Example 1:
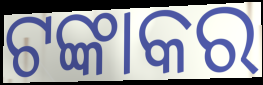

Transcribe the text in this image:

ଟଙ୍କାକର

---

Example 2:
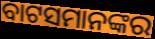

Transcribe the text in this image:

ବାଟସମାନଙ୍କର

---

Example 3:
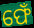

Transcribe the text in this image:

ଫେଁ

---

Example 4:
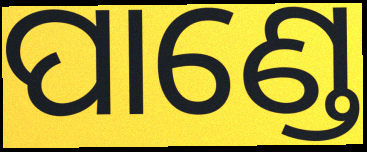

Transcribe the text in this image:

ପାଣ୍ଡେ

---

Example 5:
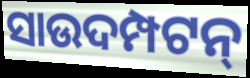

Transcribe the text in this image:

ସାଉଦମ୍ପଟନ୍